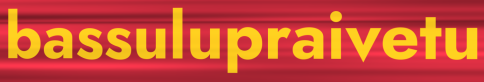
bassulupraivetu